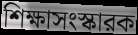
শিক্ষাসংস্কারক